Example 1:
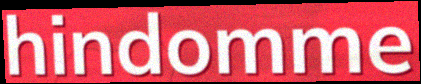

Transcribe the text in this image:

hindomme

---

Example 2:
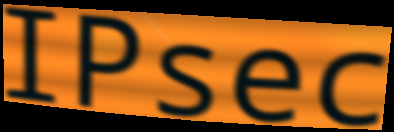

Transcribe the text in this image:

IPsec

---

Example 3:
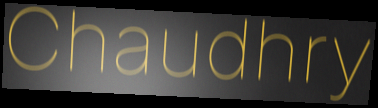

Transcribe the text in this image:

Chaudhry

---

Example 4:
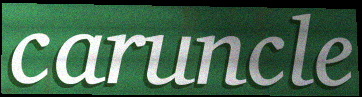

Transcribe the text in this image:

caruncle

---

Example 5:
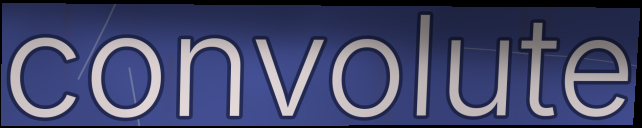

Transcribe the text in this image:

convolute